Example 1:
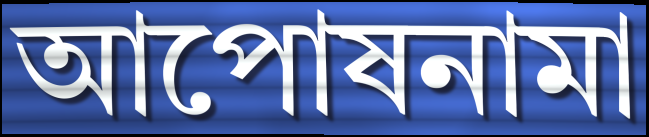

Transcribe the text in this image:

আপোষনামা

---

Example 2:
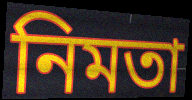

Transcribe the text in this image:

নিমতা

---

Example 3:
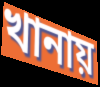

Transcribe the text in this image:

খানায়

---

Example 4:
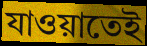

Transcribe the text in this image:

যাওয়াতেই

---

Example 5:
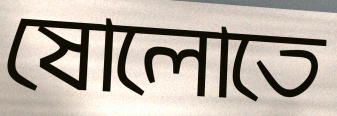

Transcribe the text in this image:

ষোলোতে